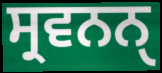
ਸ੍ਰਵਨਨੑ